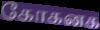
கோகனக